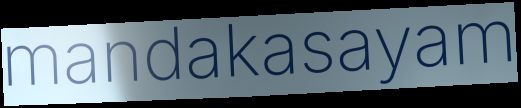
mandakasayam